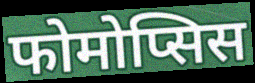
फोमोप्सिस